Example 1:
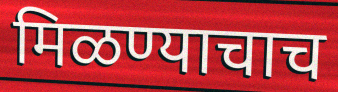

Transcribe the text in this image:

मिळण्याचाच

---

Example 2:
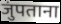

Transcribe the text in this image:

जुंपताना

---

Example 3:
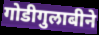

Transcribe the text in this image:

गोडीगुलाबीने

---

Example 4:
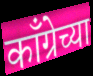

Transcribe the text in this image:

काँग्रेच्या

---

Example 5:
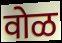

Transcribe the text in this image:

वोळ